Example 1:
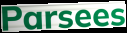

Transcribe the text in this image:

Parsees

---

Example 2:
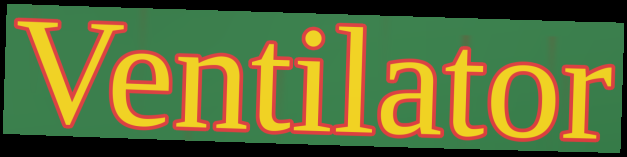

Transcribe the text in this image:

Ventilator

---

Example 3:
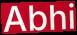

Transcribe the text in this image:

Abhi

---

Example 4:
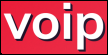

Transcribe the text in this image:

voip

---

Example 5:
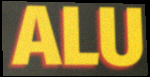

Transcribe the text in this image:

ALU